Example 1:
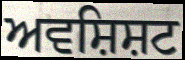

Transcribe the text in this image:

ਅਵਸ਼ਿਸ਼ਟ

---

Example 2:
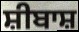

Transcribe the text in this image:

ਸ਼ੀਬਾਸ਼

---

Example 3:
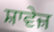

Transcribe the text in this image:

ਸ਼ਾਵੇਜ਼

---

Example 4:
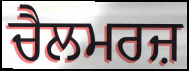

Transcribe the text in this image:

ਚੈਲਮਰਜ਼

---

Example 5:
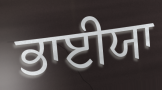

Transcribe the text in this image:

ਭਾਈਯਾ